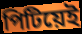
পিটিয়েই